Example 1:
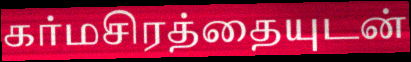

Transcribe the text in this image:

கர்மசிரத்தையுடன்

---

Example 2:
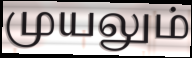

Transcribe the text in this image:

முயலும்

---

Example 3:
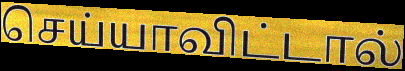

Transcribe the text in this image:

செய்யாவிட்டால்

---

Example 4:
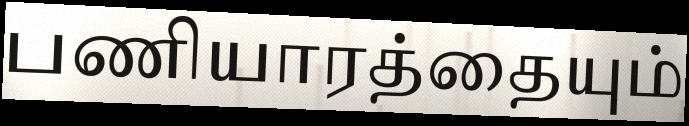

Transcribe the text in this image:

பணியாரத்தையும்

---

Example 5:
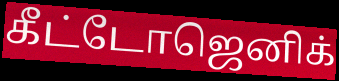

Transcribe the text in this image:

கீட்டோஜெனிக்